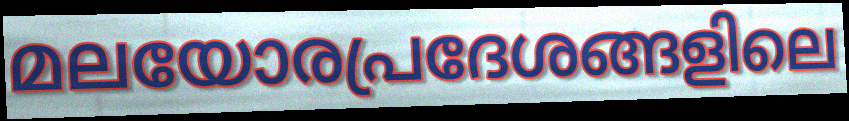
മലയോരപ്രദേശങ്ങളിലെ